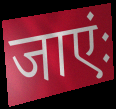
जाएंः